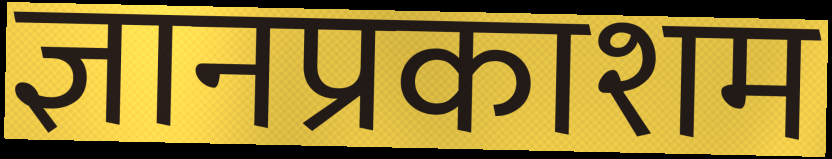
ज्ञानप्रकाशम